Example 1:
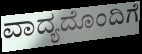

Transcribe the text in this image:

ವಾದ್ಯದೊಂದಿಗೆ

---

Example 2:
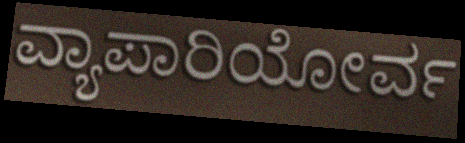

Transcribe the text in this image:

ವ್ಯಾಪಾರಿಯೋರ್ವ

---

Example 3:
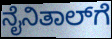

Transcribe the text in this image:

ನೈನಿತಾಲ್‌ಗೆ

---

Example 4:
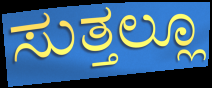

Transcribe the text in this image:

ಸುತ್ತಲ್ಲೂ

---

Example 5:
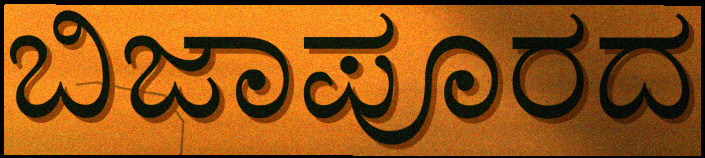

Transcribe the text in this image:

ಬಿಜಾಪೂರದ